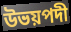
উভয়পদী